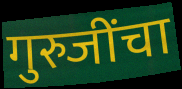
गुरुजींचा